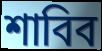
শাবিব